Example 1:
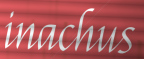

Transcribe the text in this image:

inachus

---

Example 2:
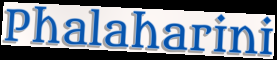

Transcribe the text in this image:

Phalaharini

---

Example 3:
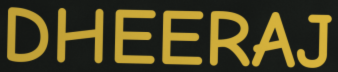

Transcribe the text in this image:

DHEERAJ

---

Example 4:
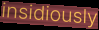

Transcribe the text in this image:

insidiously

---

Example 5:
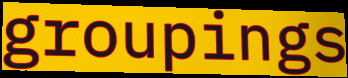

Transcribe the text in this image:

groupings